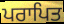
ਪਰਾਪਿਤ